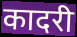
कादरी